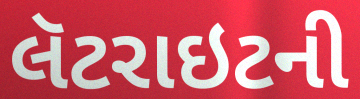
લૅટરાઇટની